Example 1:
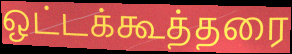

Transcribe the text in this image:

ஒட்டக்கூத்தரை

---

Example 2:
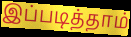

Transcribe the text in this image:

இப்படித்தாம்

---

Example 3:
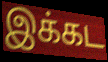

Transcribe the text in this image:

இக்கட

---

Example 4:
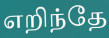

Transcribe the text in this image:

எறிந்தே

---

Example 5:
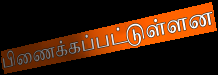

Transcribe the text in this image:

பிணைக்கப்பட்டுள்ளன